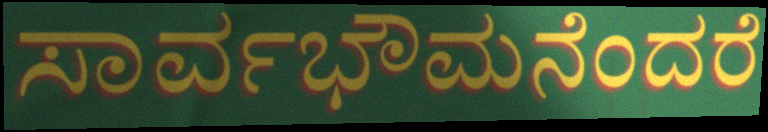
ಸಾರ್ವಭೌಮನೆಂದರೆ